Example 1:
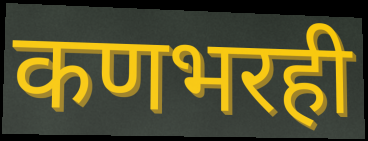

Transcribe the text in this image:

कणभरही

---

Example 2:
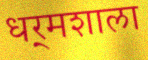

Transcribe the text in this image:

धर्मशाला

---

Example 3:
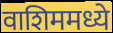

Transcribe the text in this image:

वाशिममध्ये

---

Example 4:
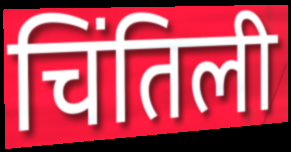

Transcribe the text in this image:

चिंतिली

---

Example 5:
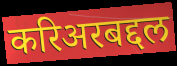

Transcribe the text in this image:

करिअरबद्दल